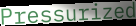
Pressurized